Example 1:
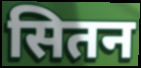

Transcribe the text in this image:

सितन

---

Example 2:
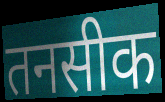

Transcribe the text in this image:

तनसीक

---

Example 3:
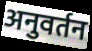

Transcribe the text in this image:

अनुवर्तन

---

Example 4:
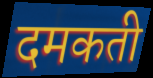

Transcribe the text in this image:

दमकती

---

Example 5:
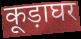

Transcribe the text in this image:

कूड़ाघर